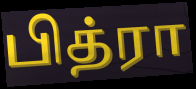
பித்ரா